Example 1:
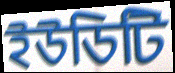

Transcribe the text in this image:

ইউডিটি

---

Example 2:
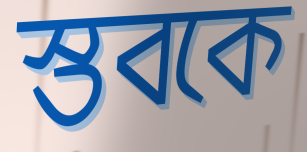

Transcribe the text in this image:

স্তবকে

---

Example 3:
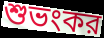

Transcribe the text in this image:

শুভংকর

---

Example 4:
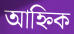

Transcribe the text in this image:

আহ্নিক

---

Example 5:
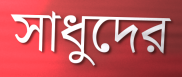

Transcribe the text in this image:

সাধুদের